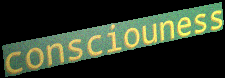
consciouness